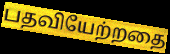
பதவியேற்றதை